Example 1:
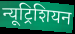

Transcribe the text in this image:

न्यूट्रिशियन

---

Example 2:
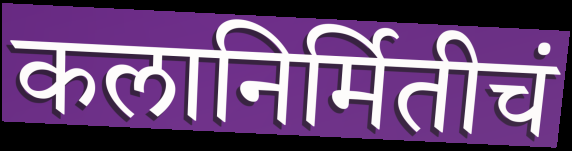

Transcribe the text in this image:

कलानिर्मितीचं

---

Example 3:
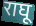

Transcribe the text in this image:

राघू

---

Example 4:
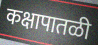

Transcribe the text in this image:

कक्षापातळी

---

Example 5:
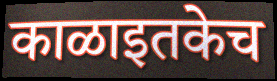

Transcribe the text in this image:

काळाइतकेच